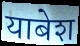
याबेश